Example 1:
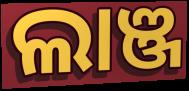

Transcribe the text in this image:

ଲାଞ୍ଜ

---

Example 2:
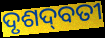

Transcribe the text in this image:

ଦୃଶଦ୍‌ବତୀ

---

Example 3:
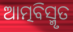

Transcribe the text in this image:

ଆତ୍ମବିସ୍ମୃତ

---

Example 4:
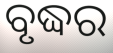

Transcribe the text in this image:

ବୃଦ୍ଧର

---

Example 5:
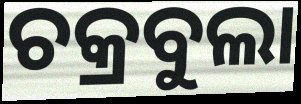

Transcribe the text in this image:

ଚକ୍ରବୁଲା